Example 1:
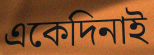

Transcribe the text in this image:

একেদিনাই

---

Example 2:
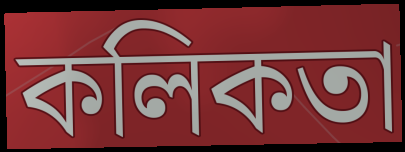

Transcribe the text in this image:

কলিকতা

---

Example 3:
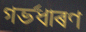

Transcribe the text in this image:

গৰ্ভধাৰণ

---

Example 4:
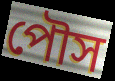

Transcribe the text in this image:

পৌস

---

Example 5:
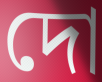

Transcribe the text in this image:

দো